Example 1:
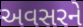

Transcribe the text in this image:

અવસરને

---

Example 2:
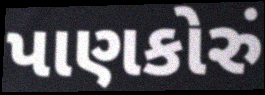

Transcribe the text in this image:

પાણકોરું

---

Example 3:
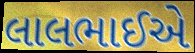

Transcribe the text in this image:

લાલભાઈએ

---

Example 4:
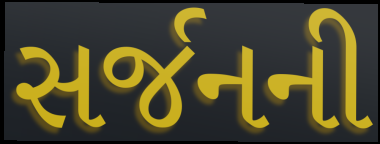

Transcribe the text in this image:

સર્જનની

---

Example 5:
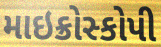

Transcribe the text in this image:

માઇક્રોસ્કોપી